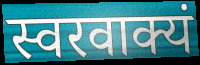
स्वरवाक्यं